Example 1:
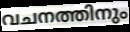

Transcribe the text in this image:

വചനത്തിനും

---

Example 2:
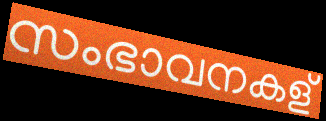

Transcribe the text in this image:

സംഭാവനകള്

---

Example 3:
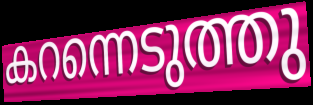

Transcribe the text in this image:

കറന്നെടുത്തു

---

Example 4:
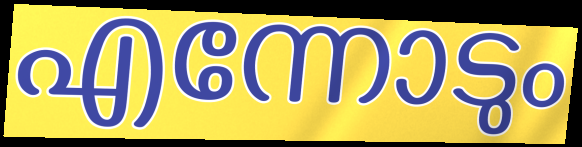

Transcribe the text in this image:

എന്നോടും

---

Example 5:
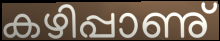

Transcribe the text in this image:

കഴിപ്പാണു്